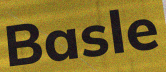
Basle